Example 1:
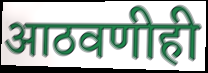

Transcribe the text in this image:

आठवणीही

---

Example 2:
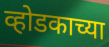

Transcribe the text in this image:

व्होडकाच्या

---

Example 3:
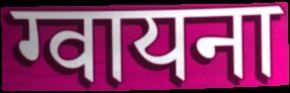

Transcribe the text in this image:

ग्वायना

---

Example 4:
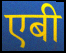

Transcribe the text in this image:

एबी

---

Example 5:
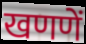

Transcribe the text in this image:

खणणें